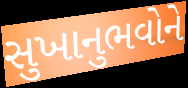
સુખાનુભવોને